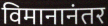
विमानानंतर